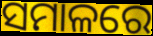
ସମାଳରେ